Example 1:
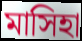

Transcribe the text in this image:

মাসিহা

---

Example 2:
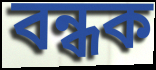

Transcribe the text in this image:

বন্ধক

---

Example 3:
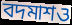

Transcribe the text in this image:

বদমাশও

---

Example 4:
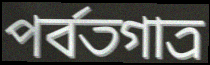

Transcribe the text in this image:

পর্বতগাত্র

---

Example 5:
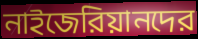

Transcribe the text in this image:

নাইজেরিয়ানদের